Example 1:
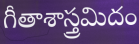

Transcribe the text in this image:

గీతాశాస్త్రమిదం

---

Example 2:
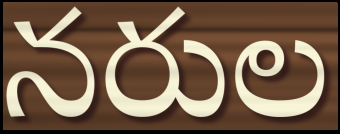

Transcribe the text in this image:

నరుల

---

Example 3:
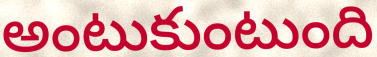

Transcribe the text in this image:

అంటుకుంటుంది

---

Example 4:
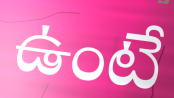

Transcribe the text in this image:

ఉంటే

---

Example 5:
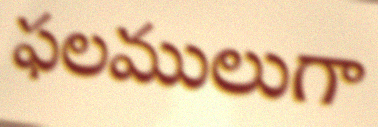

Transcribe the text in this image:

ఫలములుగా